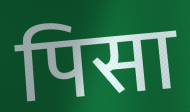
पिसा